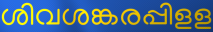
ശിവശങ്കരപ്പിളള